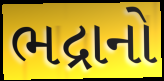
ભદ્રાનો